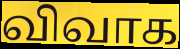
விவாக